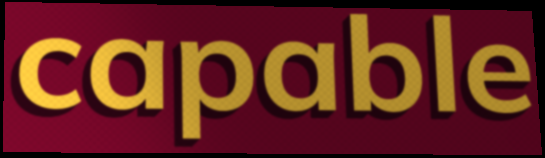
capable